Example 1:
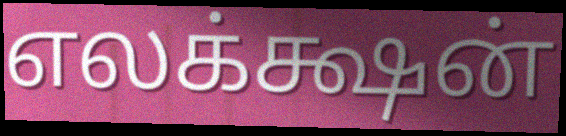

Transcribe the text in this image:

எலக்க்ஷன்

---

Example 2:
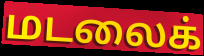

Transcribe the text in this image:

மடலைக்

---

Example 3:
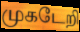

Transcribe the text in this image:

முகடேறி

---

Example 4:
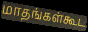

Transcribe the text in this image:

மாதங்கள்கூட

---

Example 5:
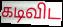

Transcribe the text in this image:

கடிவிட